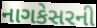
નાગકેસરની